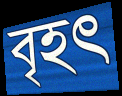
বৃহৎ